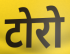
टोरो